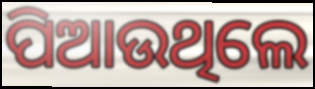
ପିଆଉଥିଲେ